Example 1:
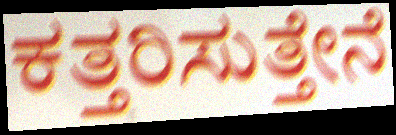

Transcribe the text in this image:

ಕತ್ತರಿಸುತ್ತೇನೆ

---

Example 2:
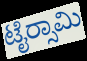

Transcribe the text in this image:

ಟೈರ‍್ಸಾಮಿ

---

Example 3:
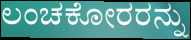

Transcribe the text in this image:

ಲಂಚಕೋರರನ್ನು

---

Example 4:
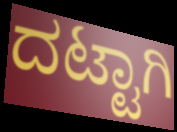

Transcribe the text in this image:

ದಟ್ಟಾಗಿ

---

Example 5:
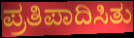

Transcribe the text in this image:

ಪ್ರತಿಪಾದಿಸಿತು